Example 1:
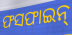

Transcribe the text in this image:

ଫସଫାଇନ୍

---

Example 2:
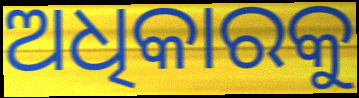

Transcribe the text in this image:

ଅଧିକାରକୁ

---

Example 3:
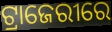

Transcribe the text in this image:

ଟ୍ରାଜେରୀରେ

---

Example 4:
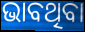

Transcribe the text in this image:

ଭାବଥିବା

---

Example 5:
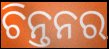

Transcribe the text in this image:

ଚିନ୍ତନର